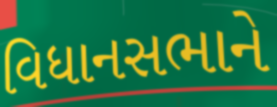
વિધાનસભાને